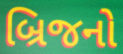
બ્રિજનો